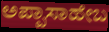
ಅಪ್ಪಾಸಾಹೇಬ